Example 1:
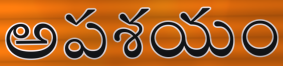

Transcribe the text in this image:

అపశయం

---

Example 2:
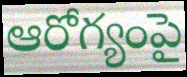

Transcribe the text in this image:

ఆరోగ్యంపై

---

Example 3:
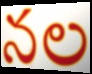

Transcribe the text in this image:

నల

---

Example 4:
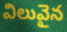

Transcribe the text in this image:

విలువైన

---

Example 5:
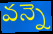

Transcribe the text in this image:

వన్నె